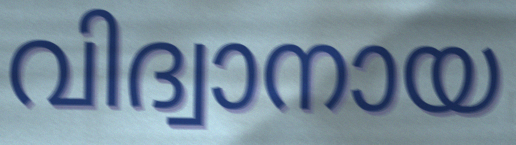
വിദ്വാനായ